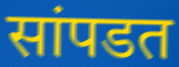
सांपडत